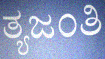
ತ್ಯಜಂತಿ